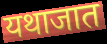
यथाजात